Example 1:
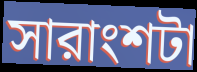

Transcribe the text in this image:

সারাংশটা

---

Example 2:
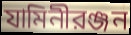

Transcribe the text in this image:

যামিনীরঞ্জন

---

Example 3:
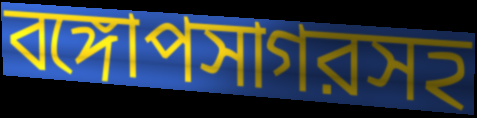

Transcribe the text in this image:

বঙ্গোপসাগরসহ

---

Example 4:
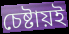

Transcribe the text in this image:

চেষ্টায়ই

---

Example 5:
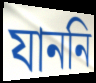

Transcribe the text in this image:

যাননি